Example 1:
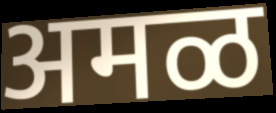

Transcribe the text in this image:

अमळ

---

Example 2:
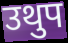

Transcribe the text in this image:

उथुप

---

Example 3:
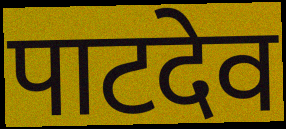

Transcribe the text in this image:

पाटदेव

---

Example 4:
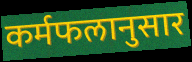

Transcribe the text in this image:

कर्मफलानुसार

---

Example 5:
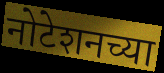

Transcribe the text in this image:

नोटेशनच्या